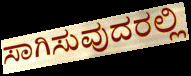
ಸಾಗಿಸುವುದರಲ್ಲಿ